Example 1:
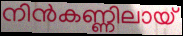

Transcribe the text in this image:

നിൻകണ്ണിലായ്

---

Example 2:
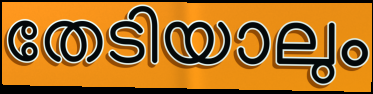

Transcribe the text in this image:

തേടിയാലും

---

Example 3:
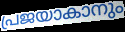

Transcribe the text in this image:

പ്രജയാകാനും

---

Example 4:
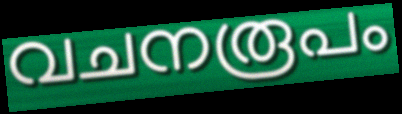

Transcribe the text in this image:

വചനരൂപം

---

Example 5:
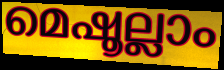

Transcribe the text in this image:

മെഷൂല്ലാം